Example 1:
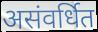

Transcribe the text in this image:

असंवर्धित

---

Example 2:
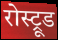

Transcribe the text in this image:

रोस्ट्रूड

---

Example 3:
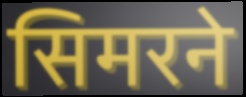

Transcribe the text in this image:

सिमरने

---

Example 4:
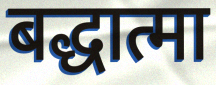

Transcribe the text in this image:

बद्धात्मा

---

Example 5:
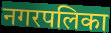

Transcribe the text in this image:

नगरपलिका